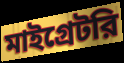
মাইগ্রেটরি